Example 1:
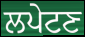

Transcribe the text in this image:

ਲਪੇਟਣ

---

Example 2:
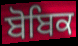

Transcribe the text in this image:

ਬੋਬਿਕ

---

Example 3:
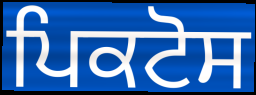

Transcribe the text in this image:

ਪਿਕਟੋਸ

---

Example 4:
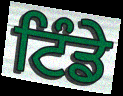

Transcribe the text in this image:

ਟਿੰਡੇ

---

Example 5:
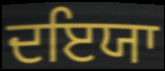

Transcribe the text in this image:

ਦਇਯਾ